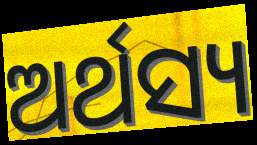
ଅର୍ଥସ୍ୟ